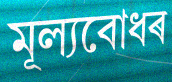
মূল্যবোধৰ